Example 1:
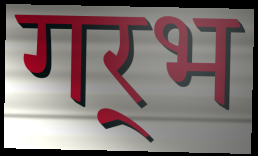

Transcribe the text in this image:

गर्भ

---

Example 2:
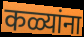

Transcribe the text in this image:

कळ्यांना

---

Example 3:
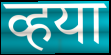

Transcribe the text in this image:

व्हया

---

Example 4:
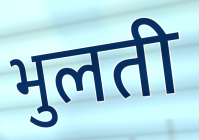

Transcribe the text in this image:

भुलती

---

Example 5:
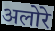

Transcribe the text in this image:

अलोरे